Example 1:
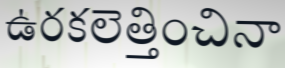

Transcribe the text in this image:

ఉరకలెత్తించినా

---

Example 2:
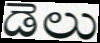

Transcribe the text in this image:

డెలు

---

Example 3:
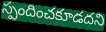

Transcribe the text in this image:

స్పందించకూడదని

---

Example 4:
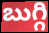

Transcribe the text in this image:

బుగ్గి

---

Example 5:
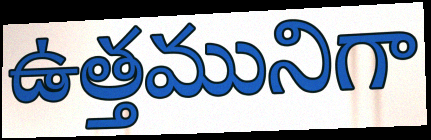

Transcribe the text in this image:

ఉత్తమునిగా